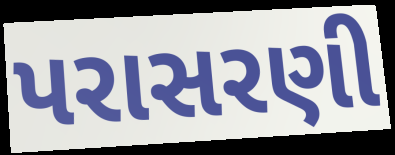
પરાસરણી